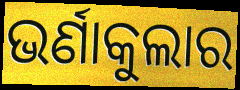
ଭର୍ଣାକୁଲାର